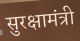
सुरक्षामंत्री